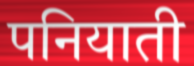
पनियाती